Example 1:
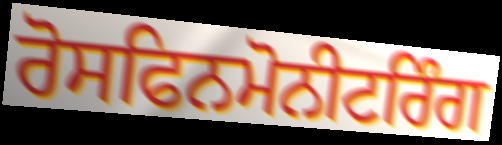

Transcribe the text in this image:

ਰੋਸਫਿਨਮੋਨੀਟਰਿੰਗ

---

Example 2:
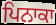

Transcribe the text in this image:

ਪਿਨਾਕਾ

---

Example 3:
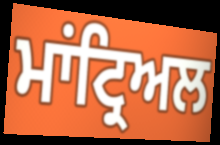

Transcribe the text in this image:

ਮਾਂਟ੍ਰਿਅਲ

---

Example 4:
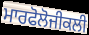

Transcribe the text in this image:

ਮਾਰਫੋਲੋਜੀਕਲੀ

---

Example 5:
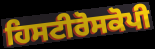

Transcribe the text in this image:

ਹਿਸਟੀਰੋਸਕੋਪੀ